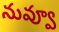
నువ్వూ